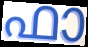
ഫാ